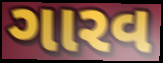
ગારવ